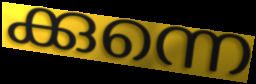
ക്കുന്നെ